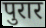
पुरार